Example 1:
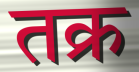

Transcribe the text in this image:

तक्र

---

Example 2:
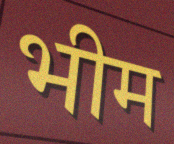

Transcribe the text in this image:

भीम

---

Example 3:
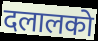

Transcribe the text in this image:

दलालको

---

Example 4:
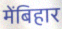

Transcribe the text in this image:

मेंबिहार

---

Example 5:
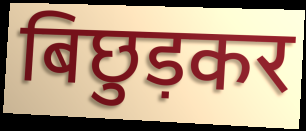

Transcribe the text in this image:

बिछुड़कर